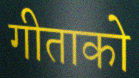
गीताको